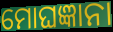
ମୋଘଜ୍ଞାନା